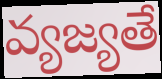
వ్యజ్యతే